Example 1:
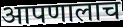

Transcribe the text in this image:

आपणालाच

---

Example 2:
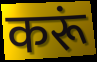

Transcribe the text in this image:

करूं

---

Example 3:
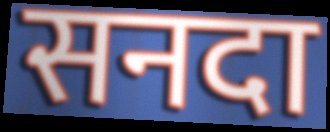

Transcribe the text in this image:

सनदा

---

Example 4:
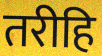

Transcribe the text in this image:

तरीहि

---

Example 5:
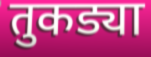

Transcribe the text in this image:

तुकड्या